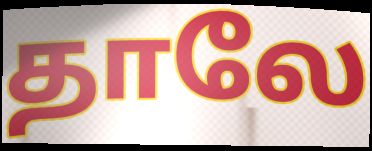
தாலே